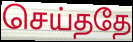
செய்ததே